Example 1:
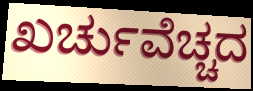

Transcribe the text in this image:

ಖರ್ಚುವೆಚ್ಚದ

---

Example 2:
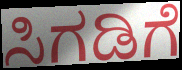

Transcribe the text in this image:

ಸಿಗಡಿಗೆ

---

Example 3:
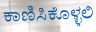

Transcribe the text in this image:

ಕಾಣಿಸಿಕೊಳ್ಳಲಿ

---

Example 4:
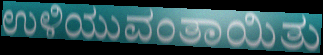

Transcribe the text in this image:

ಉಳಿಯುವಂತಾಯಿತು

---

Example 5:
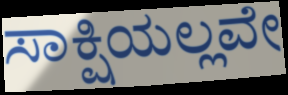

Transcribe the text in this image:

ಸಾಕ್ಷಿಯಲ್ಲವೇ